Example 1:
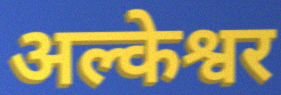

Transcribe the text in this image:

अल्केश्वर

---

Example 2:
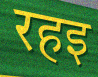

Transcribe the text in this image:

रहइ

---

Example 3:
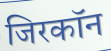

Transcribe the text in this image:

जिरकॉन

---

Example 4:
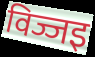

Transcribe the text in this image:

विज्जइ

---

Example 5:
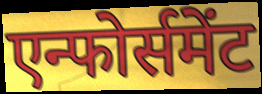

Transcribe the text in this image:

एन्फोर्समेंट